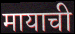
मायाची